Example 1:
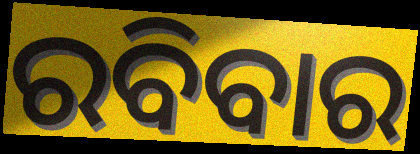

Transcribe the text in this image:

ରବିବାର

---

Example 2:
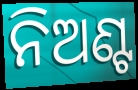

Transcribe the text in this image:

ନିଅଣ୍ଟ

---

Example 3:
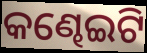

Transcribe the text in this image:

କଣ୍ଢେଇଟି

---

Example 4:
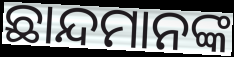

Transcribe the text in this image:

ଛାନ୍ଦମାନଙ୍କ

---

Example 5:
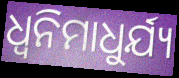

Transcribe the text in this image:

ଧ୍ୱନିମାଧୁର୍ଯ୍ୟ